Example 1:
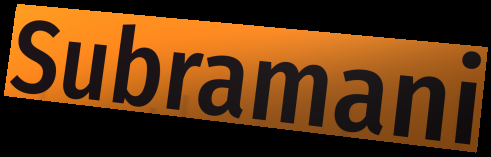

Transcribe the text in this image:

Subramani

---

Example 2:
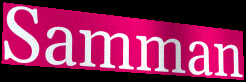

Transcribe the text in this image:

Samman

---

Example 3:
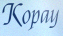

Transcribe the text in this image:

Kopay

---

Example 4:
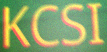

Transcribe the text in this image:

KCSI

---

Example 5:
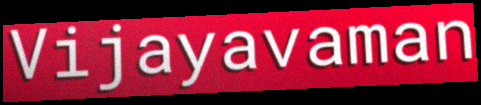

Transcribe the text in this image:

Vijayavaman